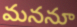
మననూ